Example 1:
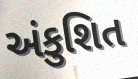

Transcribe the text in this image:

અંકુશિત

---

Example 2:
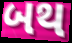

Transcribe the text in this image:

બથ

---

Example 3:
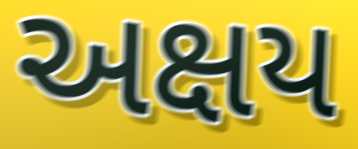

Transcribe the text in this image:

અક્ષય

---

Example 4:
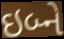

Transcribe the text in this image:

ઇબ્ને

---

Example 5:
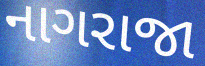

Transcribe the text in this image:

નાગરાજા